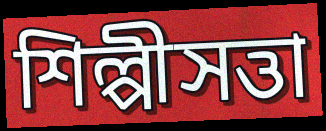
শিল্পীসত্তা